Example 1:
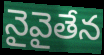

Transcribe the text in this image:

నైవైతేన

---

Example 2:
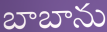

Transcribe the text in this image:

బాబాను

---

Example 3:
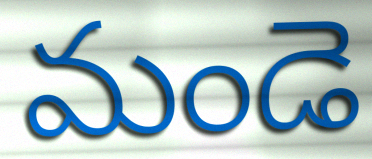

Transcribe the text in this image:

మండె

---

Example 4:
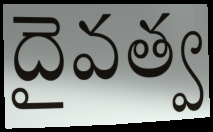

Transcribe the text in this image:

దైవత్వ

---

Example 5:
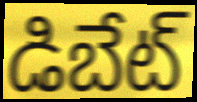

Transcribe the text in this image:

డిబేట్